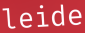
leide